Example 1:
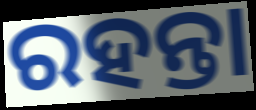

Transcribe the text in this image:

ରହନ୍ତା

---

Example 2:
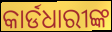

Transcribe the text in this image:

କାର୍ଡଧାରୀଙ୍କ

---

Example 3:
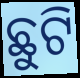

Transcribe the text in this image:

ଛୁଟି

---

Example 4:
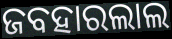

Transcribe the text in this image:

ଜବହାରଲାଲ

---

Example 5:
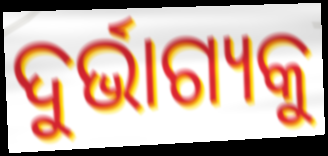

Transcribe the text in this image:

ଦୁର୍ଭାଗ୍ୟକୁ